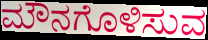
ಮೌನಗೊಳಿಸುವ